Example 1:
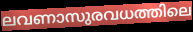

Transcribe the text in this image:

ലവണാസുരവധത്തിലെ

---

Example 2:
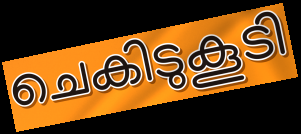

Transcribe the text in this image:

ചെകിടുകൂടി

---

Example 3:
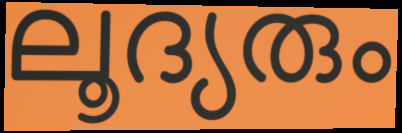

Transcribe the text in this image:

ലൂദ്യരും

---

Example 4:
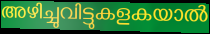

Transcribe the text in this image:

അഴിച്ചുവിട്ടുകളകയാൽ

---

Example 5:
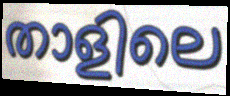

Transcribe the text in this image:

താളിലെ